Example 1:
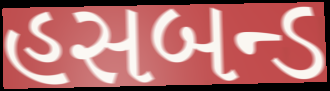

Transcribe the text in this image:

હસબન્ડ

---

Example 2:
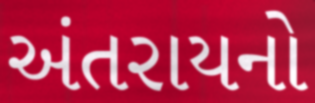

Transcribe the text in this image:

અંતરાયનો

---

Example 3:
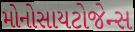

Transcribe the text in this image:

મોનોસાયટોજેન્સ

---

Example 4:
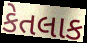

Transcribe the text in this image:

કેતલાક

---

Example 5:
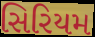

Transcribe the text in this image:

સિરિયમ